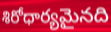
శిరోధార్యమైనది